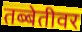
तब्बेतीवर